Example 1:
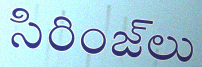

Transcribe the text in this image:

సిరింజ్‌లు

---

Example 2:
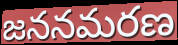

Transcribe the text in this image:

జననమరణ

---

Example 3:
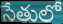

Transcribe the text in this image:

సేతులో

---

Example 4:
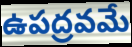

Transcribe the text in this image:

ఉపద్రవమే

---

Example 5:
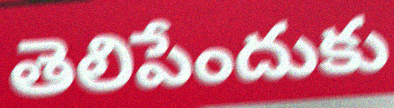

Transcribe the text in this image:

తెలిపేందుకు